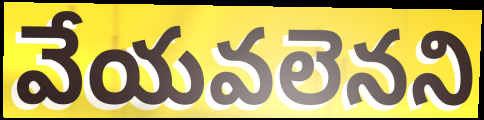
వేయవలెనని